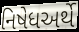
નિષેધઅર્થે